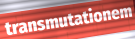
transmutationem